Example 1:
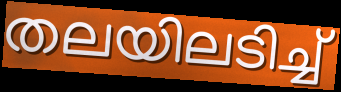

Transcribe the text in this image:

തലയിലടിച്ച്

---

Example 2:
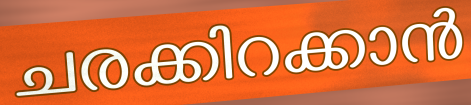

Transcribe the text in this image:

ചരക്കിറക്കാൻ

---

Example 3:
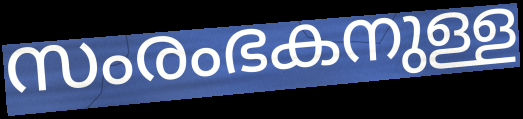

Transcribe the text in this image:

സംരംഭകനുള്ള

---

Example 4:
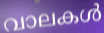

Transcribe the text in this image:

വാലകൾ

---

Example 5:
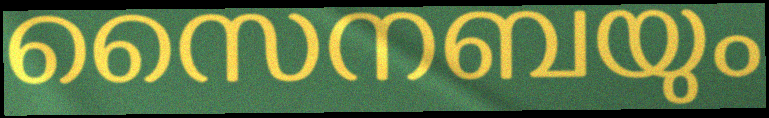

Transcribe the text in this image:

സൈനബയും